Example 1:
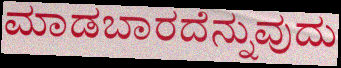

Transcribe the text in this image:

ಮಾಡಬಾರದೆನ್ನುವುದು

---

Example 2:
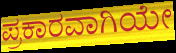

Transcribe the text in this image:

ಪ್ರಕಾರವಾಗಿಯೇ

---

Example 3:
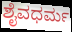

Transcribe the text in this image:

ಶೈವಧರ್ಮ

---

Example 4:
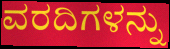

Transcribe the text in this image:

ವರದಿಗಳನ್ನು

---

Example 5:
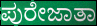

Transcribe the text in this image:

ಪುರೇಜಾತಾ